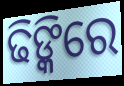
ଢିଙ୍କିରେ